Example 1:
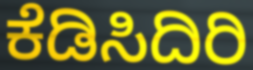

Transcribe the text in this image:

ಕೆಡಿಸಿದಿರಿ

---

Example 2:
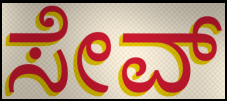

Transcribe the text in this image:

ಸೇವ್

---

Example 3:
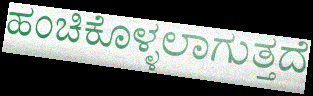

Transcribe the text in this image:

ಹಂಚಿಕೊಳ್ಳಲಾಗುತ್ತದೆ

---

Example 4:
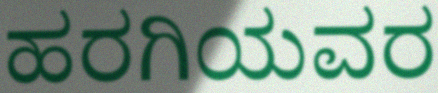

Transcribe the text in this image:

ಹರಗಿಯವರ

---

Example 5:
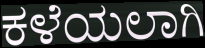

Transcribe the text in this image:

ಕಳೆಯಲಾಗಿ